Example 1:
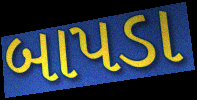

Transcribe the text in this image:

બાપડા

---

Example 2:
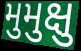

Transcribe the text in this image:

મુમુક્ષુ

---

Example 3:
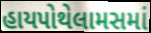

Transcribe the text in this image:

હાયપોથેલામસમાં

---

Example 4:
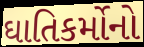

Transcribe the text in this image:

ઘાતિકર્મોનો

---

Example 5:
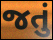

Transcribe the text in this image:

જતું